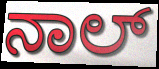
ನಾಲ್